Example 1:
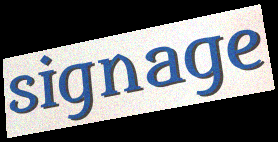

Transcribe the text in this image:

signage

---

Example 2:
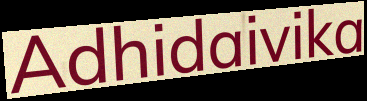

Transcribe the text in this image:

Adhidaivika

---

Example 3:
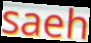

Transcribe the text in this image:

saeh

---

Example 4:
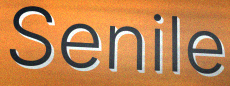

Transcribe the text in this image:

Senile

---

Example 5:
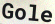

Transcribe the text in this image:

Gole